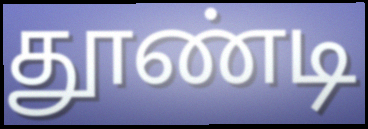
தூண்டி